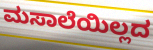
ಮಸಾಲೆಯಿಲ್ಲದ